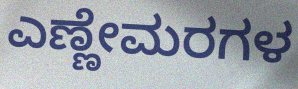
ಎಣ್ಣೇಮರಗಳ